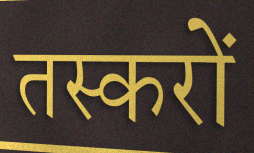
तस्करों